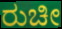
ರುಚೀ